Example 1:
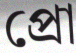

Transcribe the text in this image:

প্রো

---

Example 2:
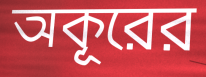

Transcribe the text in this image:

অকূরের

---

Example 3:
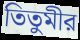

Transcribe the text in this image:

তিতুমীর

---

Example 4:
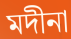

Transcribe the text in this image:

মদীনা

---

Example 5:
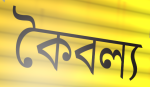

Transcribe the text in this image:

কৈবল্য